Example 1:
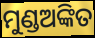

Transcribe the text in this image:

ମୁଣ୍ଡଅଙ୍କିତ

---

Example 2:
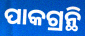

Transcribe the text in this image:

ପାକଗ୍ରନ୍ଥି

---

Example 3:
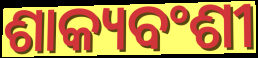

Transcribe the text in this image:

ଶାକ୍ୟବଂଶୀ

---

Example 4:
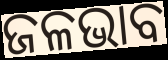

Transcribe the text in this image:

ଜଳଭାବ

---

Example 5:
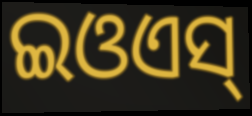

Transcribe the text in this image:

ଇଓଏସ୍